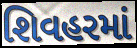
શિવહરમાં